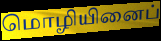
மொழியினைப்